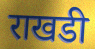
राखडी